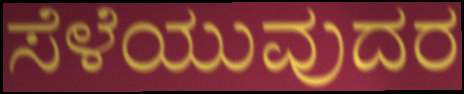
ಸೆಳೆಯುವುದರ